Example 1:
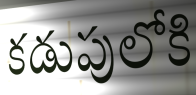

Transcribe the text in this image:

కడుపులోకి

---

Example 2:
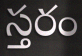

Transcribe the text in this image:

స్తరం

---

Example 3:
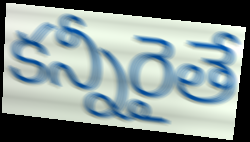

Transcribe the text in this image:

కన్నీరైతే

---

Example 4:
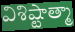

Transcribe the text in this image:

విశిష్టాత్మా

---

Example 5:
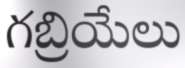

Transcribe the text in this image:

గబ్రియేలు